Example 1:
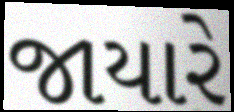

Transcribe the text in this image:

જાયારે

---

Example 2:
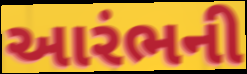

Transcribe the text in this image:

આરંભની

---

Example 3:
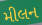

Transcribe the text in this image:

મીલન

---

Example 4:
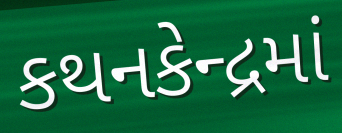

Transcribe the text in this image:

કથનકેન્દ્રમાં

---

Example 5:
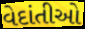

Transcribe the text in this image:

વેદાંતીઓ